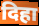
दिहा